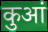
कुआं